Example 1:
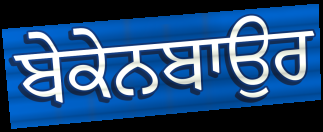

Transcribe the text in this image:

ਬੇਕੇਨਬਾਉਰ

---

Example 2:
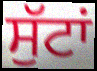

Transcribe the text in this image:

ਸੁੱਟਾਂ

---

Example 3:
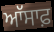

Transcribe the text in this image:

ਆੱਸਾਫ਼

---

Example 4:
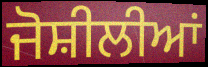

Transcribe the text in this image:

ਜੋਸ਼ੀਲੀਆਂ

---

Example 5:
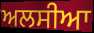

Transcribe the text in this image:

ਅਲਸੀਆ